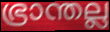
ഭ്രാന്തല്ല